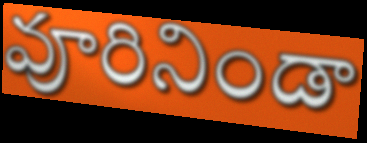
వూరినిండా